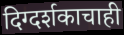
दिग्दर्शकाचाही